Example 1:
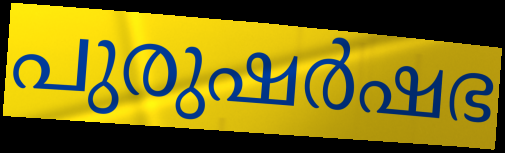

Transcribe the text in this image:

പുരുഷർഷഭ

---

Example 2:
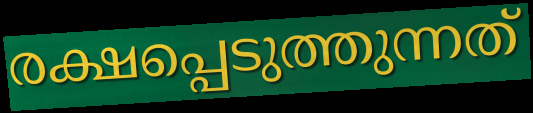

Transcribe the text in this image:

രക്ഷപ്പെടുത്തുന്നത്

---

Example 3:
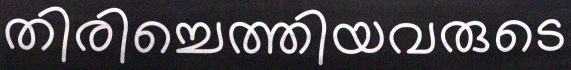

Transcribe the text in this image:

തിരിച്ചെത്തിയവരുടെ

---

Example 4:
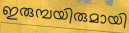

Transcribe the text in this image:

ഇരുമ്പയിരുമായി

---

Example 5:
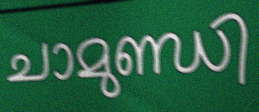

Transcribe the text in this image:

ചാമുണ്ഡി